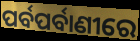
ପର୍ବପର୍ବାଣୀରେ